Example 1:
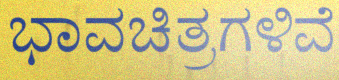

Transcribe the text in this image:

ಭಾವಚಿತ್ರಗಳಿವೆ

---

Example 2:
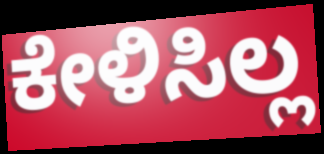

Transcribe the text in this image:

ಕೇಳಿಸಿಲ್ಲ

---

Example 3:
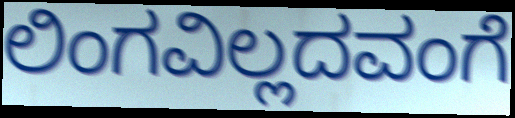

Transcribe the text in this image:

ಲಿಂಗವಿಲ್ಲದವಂಗೆ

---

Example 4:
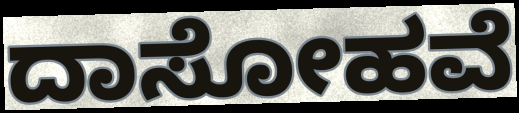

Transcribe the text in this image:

ದಾಸೋಹವೆ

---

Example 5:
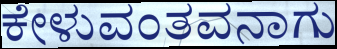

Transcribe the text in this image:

ಕೇಳುವಂತವನಾಗು